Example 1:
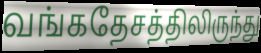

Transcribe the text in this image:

வங்கதேசத்திலிருந்து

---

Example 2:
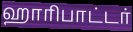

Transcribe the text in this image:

ஹாரிபாட்டர்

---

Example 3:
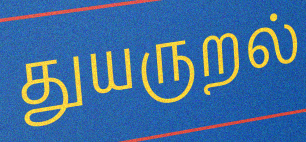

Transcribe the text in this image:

துயருறல்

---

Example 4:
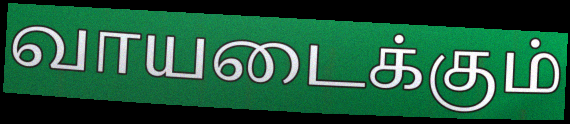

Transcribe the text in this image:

வாயடைக்கும்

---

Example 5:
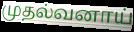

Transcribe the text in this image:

முதல்வனாய்